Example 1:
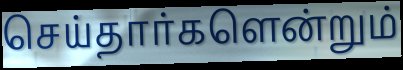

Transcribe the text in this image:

செய்தார்களென்றும்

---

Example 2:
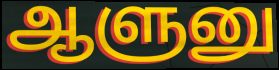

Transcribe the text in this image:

ஆளுனு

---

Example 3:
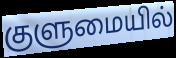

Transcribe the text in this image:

குளுமையில்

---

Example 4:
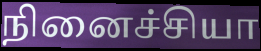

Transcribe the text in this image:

நினைச்சியா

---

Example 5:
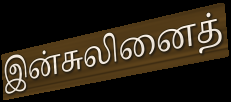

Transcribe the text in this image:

இன்சுலினைத்